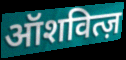
ऑशवित्ज़